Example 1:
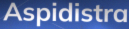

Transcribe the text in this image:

Aspidistra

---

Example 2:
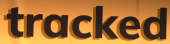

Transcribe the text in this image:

tracked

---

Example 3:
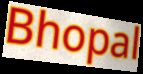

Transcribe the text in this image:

Bhopal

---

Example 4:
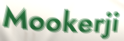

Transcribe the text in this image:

Mookerji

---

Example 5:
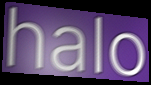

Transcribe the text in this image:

halo